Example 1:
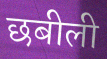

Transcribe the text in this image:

छबीली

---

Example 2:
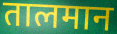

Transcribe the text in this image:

तालमान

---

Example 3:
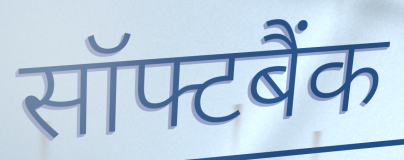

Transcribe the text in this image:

सॉफ्टबैंक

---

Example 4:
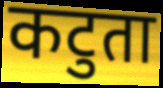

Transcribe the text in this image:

कटुता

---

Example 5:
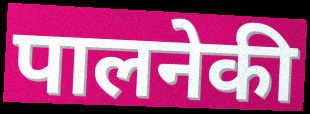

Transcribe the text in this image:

पालनेकी